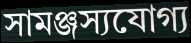
সামঞ্জস্যযোগ্য